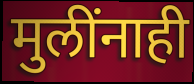
मुलींनाही